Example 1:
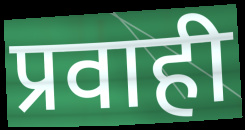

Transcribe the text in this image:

प्रवाही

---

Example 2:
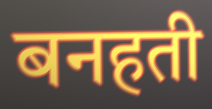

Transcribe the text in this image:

बनहती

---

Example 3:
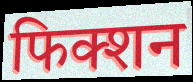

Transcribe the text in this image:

फिक्‍शन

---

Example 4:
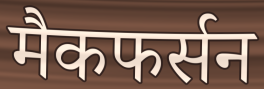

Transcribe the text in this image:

मैकफर्सन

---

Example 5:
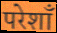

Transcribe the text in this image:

परेशाँ